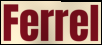
Ferrel